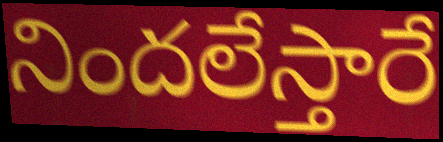
నిందలేస్తారే